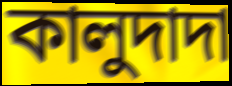
কালুদাদা